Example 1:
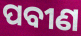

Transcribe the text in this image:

ପବୀଣ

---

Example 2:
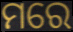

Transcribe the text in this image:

ମରେ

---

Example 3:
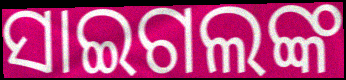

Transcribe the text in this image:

ସାଇଗଲଙ୍କ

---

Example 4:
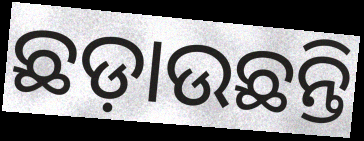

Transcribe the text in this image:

ଛଡ଼ାଉଛନ୍ତି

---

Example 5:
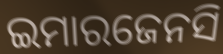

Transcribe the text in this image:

ଇମାରଜେନସି